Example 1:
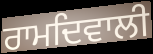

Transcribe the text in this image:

ਰਾਮਦਿਵਾਲੀ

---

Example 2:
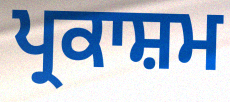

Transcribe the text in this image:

ਪ੍ਰਕਾਸ਼ਮ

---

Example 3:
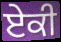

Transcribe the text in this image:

ਏਕੀ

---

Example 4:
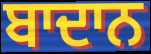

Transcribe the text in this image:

ਬਾਦਾਨ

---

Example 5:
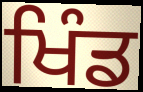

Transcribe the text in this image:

ਖਿੰਡ